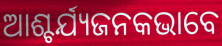
ଆଶ୍ଚର୍ଯ୍ୟଜନକଭାବେ